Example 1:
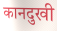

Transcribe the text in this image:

कानदुखी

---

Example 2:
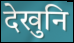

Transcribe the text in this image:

देखुनि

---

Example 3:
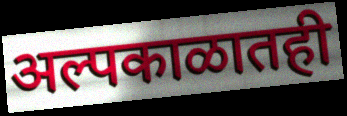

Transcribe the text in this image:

अल्पकाळातही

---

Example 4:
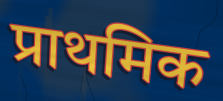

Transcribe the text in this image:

प्राथमिक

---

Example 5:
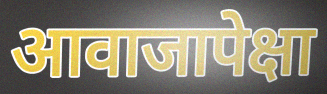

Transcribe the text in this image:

आवाजापेक्षा